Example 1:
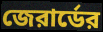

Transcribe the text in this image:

জেরার্ডের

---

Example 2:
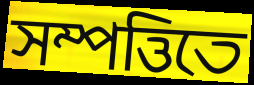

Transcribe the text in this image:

সম্পত্তিতে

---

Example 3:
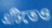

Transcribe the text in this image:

এটিতেও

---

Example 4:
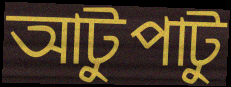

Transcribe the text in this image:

আটুপাটু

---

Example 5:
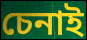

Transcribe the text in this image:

চেনাই